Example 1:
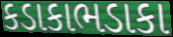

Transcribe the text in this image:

કડાકાભડાકા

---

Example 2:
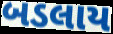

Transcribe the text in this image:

બડલાય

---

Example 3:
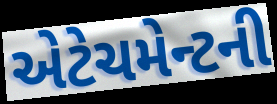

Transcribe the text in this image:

એટેચમેન્ટની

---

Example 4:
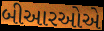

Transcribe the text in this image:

બીઆરઓએ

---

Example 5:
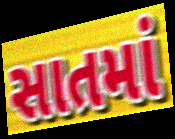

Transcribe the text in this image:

સાતમાં